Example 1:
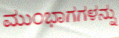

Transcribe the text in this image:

ಮುಂಭಾಗಗಳನ್ನು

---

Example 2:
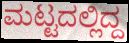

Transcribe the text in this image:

ಮಟ್ಟದಲ್ಲಿದ್ದ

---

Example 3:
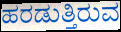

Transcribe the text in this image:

ಹರಡುತ್ತಿರುವ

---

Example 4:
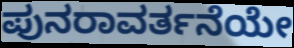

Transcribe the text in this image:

ಪುನರಾವರ್ತನೆಯೇ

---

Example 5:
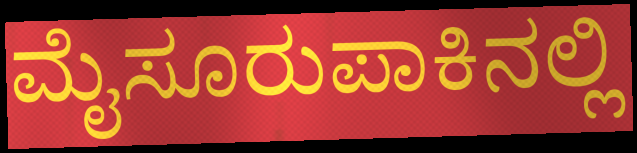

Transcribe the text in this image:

ಮೈಸೂರುಪಾಕಿನಲ್ಲಿ